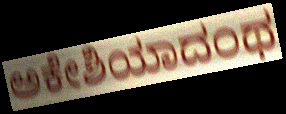
ಅಕೇಶಿಯಾದಂಥ